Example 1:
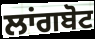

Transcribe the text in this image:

ਲਾਂਗਬੋਟ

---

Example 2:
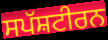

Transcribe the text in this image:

ਸਪੱਸ਼ਟੀਰਨ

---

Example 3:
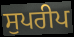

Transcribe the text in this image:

ਸੁਪਰੀਪ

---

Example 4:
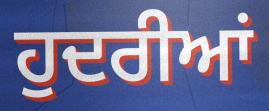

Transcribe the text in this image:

ਹੁਦਰੀਆਂ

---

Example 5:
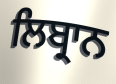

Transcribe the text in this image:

ਲਿਬ੍ਰਾਨ